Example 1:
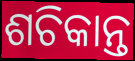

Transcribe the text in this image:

ଶଚିକାନ୍ତ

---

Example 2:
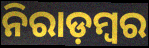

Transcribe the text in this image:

ନିରାଡ଼ମ୍ବର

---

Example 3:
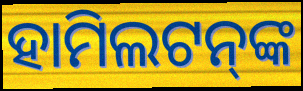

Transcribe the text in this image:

ହାମିଲଟନ୍‍ଙ୍କ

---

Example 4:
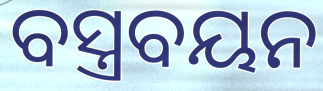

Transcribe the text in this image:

ବସ୍ତ୍ରବୟନ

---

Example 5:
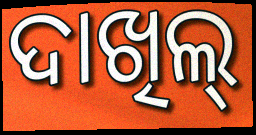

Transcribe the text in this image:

ଦାଖିଲ୍